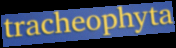
tracheophyta